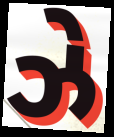
ઝે